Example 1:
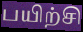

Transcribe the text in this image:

பயிற்சி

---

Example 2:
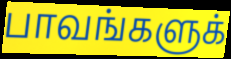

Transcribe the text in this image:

பாவங்களுக்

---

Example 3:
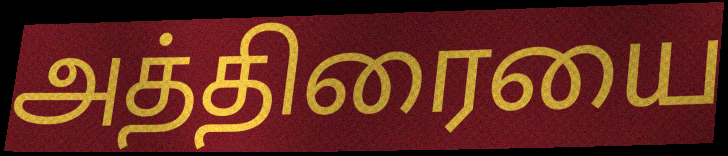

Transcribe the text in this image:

அத்திரையை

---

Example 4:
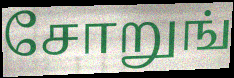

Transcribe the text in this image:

சோறுங்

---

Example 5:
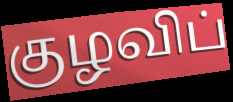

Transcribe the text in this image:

குழவிப்